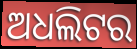
ଅଧଲିଟର